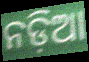
ନଡ଼ିଆ